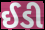
ઈડી